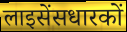
लाइसेंसधारकों